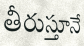
తీరుస్తూనే